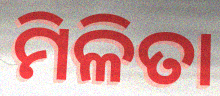
ମିଳିତା